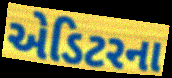
એડિટરના